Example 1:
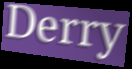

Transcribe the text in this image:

Derry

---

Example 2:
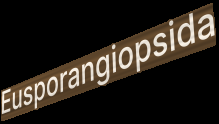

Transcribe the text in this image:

Eusporangiopsida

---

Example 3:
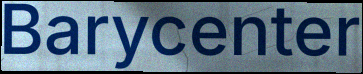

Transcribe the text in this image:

Barycenter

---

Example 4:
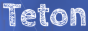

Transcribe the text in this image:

Teton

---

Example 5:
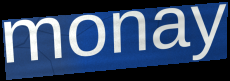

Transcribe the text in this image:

monay